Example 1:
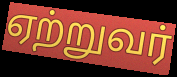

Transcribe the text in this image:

ஏற்றுவர்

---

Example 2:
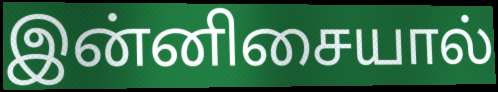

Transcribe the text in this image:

இன்னிசையால்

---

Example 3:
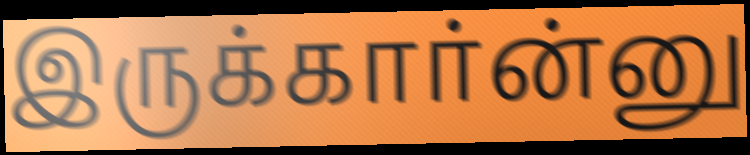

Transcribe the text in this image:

இருக்கார்ன்னு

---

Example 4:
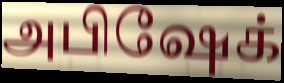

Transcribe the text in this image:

அபிஷேக்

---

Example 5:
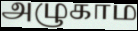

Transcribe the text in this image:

அழுகாம